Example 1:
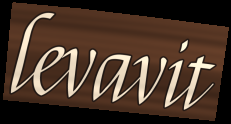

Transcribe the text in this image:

levavit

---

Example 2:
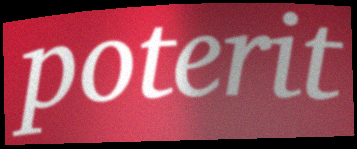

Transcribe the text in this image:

poterit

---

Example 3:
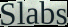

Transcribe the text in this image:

Slabs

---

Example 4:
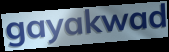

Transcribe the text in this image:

gayakwad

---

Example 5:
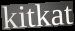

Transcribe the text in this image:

kitkat